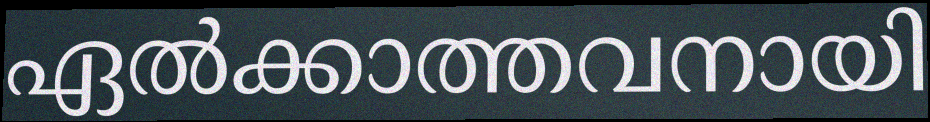
ഏൽക്കാത്തവനായി